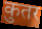
कुतर